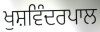
ਖੁਸ਼ਵਿੰਦਰਪਾਲ